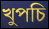
খুপচি